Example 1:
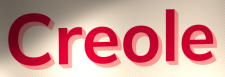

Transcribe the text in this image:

Creole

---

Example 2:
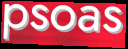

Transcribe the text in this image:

psoas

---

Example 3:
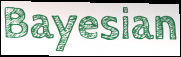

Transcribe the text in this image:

Bayesian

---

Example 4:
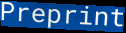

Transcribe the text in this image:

Preprint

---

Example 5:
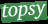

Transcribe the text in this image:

topsy